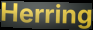
Herring